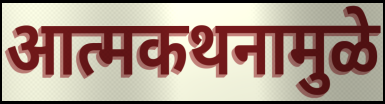
आत्मकथनामुळे